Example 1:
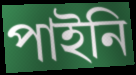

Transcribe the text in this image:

পাইনি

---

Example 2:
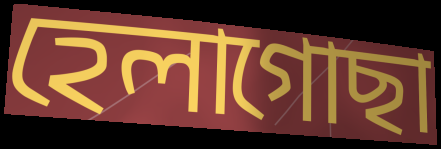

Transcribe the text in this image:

হেলাগোছা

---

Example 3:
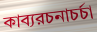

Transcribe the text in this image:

কাব্যরচনাচর্চা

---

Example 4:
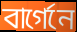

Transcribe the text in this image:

বার্গেনে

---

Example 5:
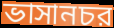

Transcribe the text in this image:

ভাসানচর